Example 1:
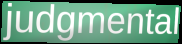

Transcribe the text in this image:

judgmental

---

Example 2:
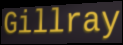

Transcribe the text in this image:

Gillray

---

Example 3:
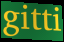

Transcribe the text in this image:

gitti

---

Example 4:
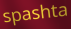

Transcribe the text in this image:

spashta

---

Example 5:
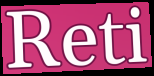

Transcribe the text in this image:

Reti